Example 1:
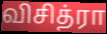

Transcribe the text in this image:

விசித்ரா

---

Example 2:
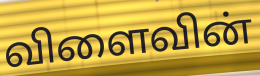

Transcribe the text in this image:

விளைவின்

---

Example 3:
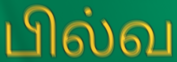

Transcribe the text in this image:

பில்வ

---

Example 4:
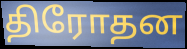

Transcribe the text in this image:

திரோதன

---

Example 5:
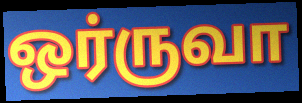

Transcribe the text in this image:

ஒர்ருவா